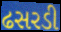
ઢસરડી